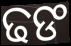
ଢଙ